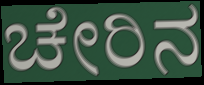
ಚೇರಿನ